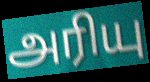
அரியு